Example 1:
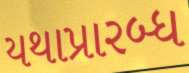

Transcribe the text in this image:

યથાપ્રારબ્ધ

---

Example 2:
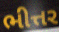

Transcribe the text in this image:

ભીત્તર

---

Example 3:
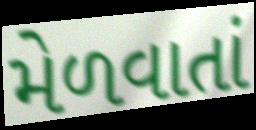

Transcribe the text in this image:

મેળવાતાં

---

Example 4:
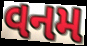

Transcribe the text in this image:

વનમ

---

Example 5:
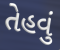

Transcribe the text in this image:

તેહવું